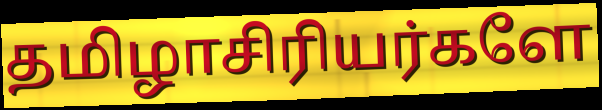
தமிழாசிரியர்களே